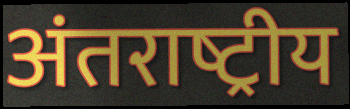
अंतराष्ट्रीय